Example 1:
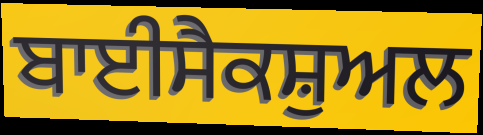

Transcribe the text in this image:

ਬਾਈਸੈਕਸ਼ੁਅਲ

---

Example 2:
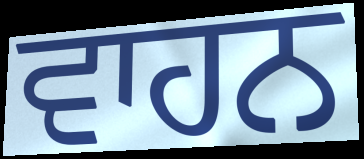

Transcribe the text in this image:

ਵਾਹਨ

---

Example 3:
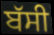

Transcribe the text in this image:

ਬੱਸੀ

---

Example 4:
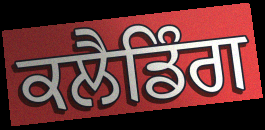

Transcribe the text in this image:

ਕਲੈਡਿੰਗ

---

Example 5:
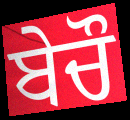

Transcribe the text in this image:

ਬੇਚੌ